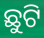
ଛୁଟି